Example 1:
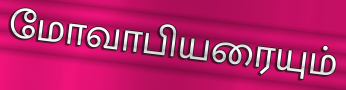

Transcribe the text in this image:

மோவாபியரையும்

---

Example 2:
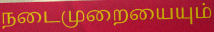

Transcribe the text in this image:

நடைமுறையையும்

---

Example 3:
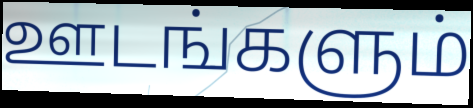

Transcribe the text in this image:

ஊடங்களும்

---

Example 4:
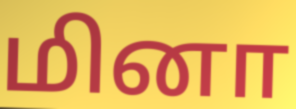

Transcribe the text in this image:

மினா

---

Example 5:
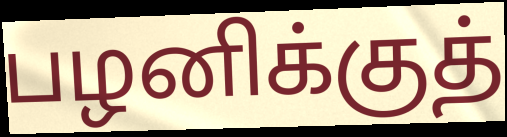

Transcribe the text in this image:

பழனிக்குத்